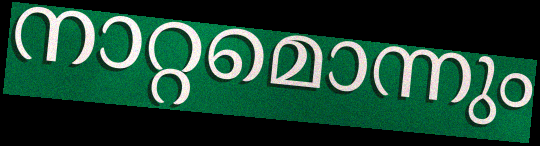
നാറ്റമൊന്നും